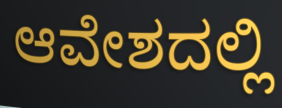
ಆವೇಶದಲ್ಲಿ